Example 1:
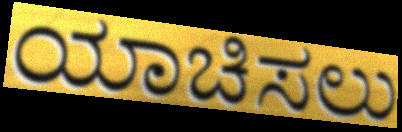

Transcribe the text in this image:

ಯಾಚಿಸಲು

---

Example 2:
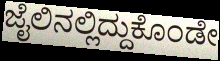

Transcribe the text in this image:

ಜೈಲಿನಲ್ಲಿದ್ದುಕೊಂಡೇ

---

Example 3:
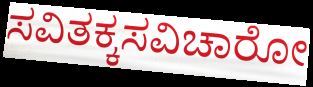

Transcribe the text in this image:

ಸವಿತಕ್ಕಸವಿಚಾರೋ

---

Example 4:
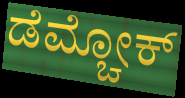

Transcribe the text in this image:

ಡೆಮ್ಚೋಕ್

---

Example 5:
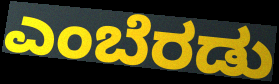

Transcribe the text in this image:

ಎಂಬೆರಡು